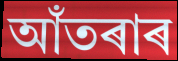
আঁতৰাৰ